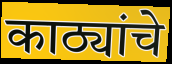
काठ्यांचे